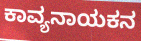
ಕಾವ್ಯನಾಯಕನ